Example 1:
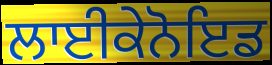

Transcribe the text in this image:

ਲਾਈਕੇਨੋਇਡ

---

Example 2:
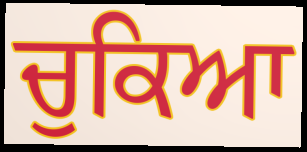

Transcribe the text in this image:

ਚੁਕਿਆ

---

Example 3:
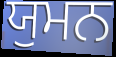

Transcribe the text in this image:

ਯੁਮਨ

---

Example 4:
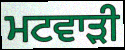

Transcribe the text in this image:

ਮਟਵਾੜੀ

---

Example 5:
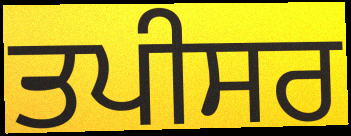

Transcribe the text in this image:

ਤਪੀਸਰ